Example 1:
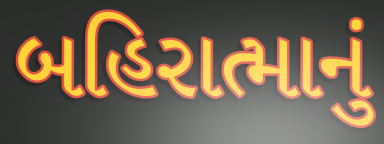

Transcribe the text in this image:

બહિરાત્માનું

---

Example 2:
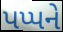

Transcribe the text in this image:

પપ્પને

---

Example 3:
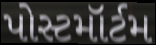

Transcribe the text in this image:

પોસ્ટમૉર્ટમ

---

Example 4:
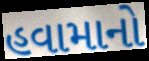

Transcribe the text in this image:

હવામાનો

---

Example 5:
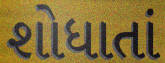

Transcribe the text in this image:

શોધાતાં